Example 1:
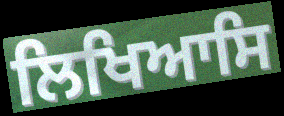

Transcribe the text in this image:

ਲਿਖਿਆਸਿ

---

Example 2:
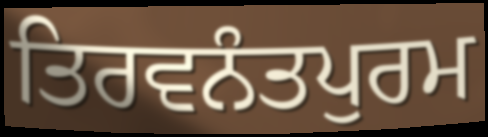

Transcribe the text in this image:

ਤਿਰਵਨੰਤਪੁਰਮ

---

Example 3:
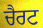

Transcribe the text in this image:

ਚੈਰਟ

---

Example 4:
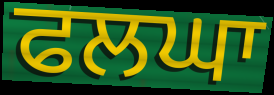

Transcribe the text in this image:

ਫਲਘਾ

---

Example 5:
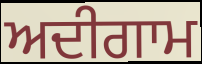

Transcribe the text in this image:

ਅਦੀਗਾਮ